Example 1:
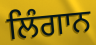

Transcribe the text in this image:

ਲਿੰਗਾਨ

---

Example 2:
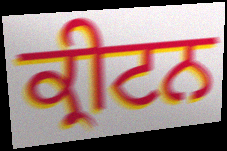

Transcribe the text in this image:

ਕ੍ਰੀਟਨ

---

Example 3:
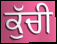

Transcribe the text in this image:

ਕੁੱਚੀ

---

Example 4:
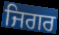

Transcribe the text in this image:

ਜਿਗਰ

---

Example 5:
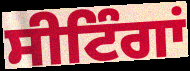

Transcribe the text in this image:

ਸੀਟਿੰਗਾਂ